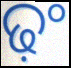
ଢ଼ଂ